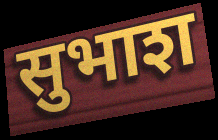
सुभाश